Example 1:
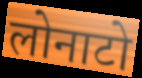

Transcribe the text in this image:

लोनाटो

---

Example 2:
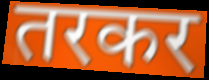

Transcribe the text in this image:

तरकर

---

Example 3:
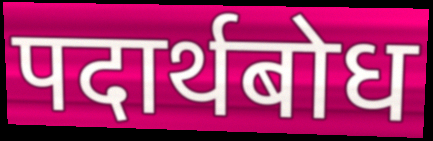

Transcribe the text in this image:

पदार्थबोध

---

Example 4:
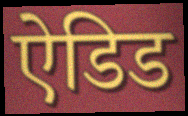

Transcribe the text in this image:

ऐडिड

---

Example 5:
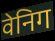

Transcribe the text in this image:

वेनिग